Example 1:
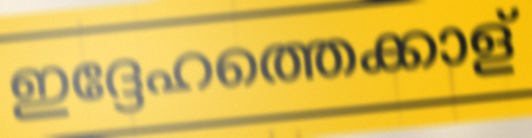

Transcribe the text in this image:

ഇദ്ദേഹത്തെക്കാള്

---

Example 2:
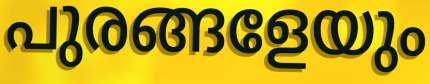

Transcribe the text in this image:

പുരങ്ങളേയും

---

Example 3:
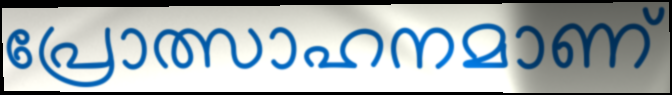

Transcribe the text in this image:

പ്രോത്സാഹനമാണ്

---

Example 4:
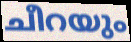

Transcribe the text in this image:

ചീറയും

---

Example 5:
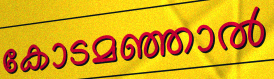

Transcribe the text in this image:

കോടമഞ്ഞാൽ